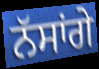
ਨੱਸਾਂਗੇ